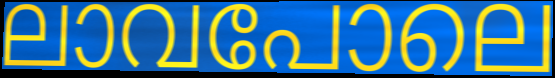
ലാവപോലെ